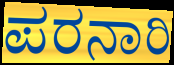
ಪರನಾರಿ